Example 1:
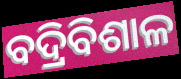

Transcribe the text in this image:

ବଦ୍ରିବିଶାଳ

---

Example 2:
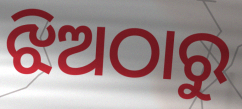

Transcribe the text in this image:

ଝିଅଠାରୁ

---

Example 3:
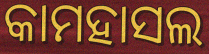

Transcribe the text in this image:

କାମହାସଲ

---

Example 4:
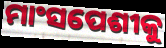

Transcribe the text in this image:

ମାଂସପେଶୀକୁ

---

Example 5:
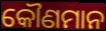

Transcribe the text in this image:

କୌଣମାନ